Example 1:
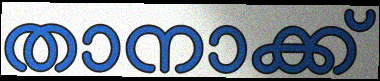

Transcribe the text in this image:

താനാക്ക്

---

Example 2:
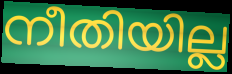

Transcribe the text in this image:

നീതിയില്ല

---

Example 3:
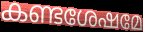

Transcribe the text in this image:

കണ്ടശേഷമേ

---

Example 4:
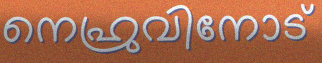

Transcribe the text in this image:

നെഹ്രുവിനോട്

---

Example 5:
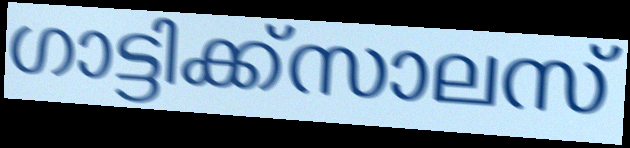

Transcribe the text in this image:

ഗാട്ടിക്ക്സാലസ്